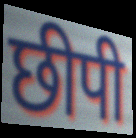
छीपी